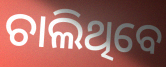
ଚାଲିଥିବେ